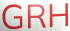
GRH